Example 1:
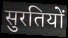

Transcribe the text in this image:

सुरतियों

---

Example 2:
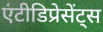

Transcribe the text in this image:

एंटीडिप्रेसेंट्स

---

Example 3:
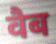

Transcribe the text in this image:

वैब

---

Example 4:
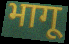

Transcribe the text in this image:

भागू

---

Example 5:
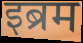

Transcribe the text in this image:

इब्रम